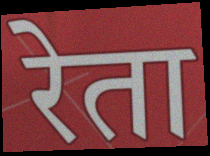
रेता